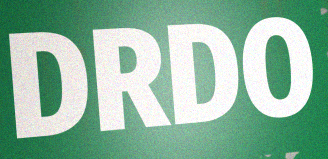
DRDO